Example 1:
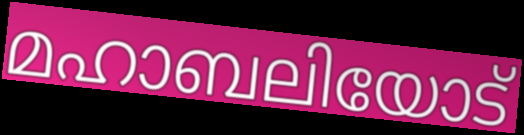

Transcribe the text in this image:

മഹാബലിയോട്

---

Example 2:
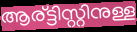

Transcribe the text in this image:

ആര്ട്ടിസ്റ്റിനുള്ള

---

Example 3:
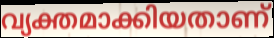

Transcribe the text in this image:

വ്യക്തമാക്കിയതാണ്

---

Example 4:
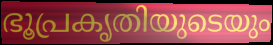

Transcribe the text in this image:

ഭൂപ്രകൃതിയുടെയും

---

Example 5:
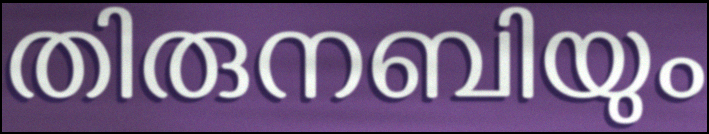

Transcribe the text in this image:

തിരുനബിയും